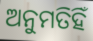
ଅନୁମତିହିଁ